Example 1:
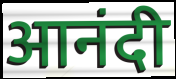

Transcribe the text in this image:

आनंदी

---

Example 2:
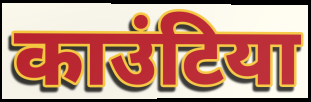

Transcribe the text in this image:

काउंटिया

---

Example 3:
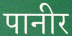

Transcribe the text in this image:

पानीर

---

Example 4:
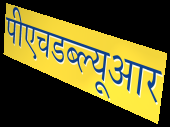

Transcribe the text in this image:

पीएचडब्ल्यूआर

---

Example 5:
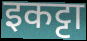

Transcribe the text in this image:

इकट्टा